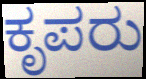
ಕೃಪರು